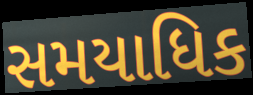
સમયાધિક